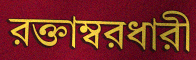
রক্তাম্বরধারী